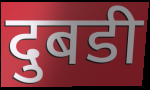
दुबडी